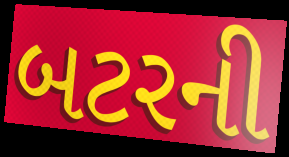
બટરની